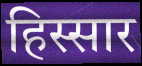
हिस्सार